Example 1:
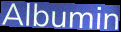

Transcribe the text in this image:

Albumin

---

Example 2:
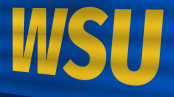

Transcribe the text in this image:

WSU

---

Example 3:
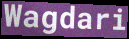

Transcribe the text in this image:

Wagdari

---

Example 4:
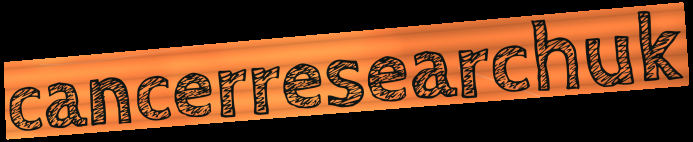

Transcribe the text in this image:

cancerresearchuk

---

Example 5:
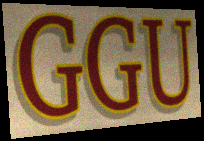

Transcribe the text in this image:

GGU